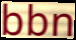
bbn